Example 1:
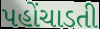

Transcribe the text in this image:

પહોંચાડતી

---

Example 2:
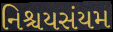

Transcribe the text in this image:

નિશ્ચયસંયમ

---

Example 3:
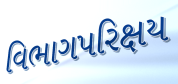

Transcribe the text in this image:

વિભાગપરિક્ષય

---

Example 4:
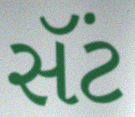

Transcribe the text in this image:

સૅંટ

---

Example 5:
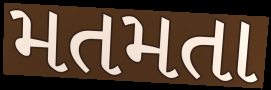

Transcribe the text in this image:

મતમતા